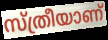
സ്ത്രീയാണ്